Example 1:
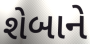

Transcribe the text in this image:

શેબાને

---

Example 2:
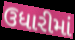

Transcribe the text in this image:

ઉધારીમાં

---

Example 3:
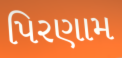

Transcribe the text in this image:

પિરણામ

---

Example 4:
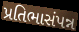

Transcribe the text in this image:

પ્રતિભાસંપન્ન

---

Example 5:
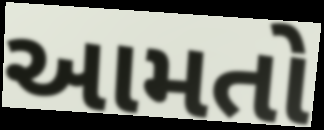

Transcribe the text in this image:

આમતો